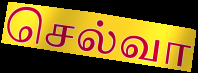
செல்வா